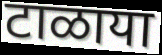
टाळाया